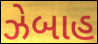
ઝેબાહ